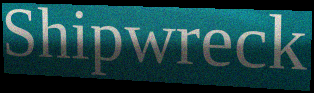
Shipwreck